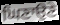
ਘਿਣਾਉਣੇ